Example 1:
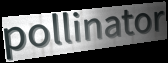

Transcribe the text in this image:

pollinator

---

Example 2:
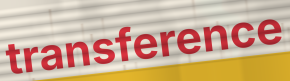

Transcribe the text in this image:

transference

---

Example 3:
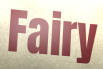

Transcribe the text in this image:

Fairy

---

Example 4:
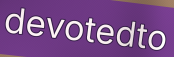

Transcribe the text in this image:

devotedto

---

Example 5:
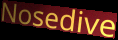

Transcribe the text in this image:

Nosedive